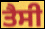
ਤੈਸੀ